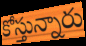
కోస్తున్నారు